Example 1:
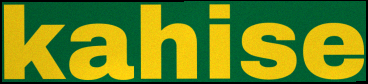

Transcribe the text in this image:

kahise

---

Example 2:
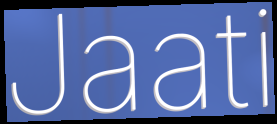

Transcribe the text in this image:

Jaati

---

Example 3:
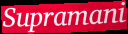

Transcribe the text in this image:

Supramani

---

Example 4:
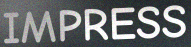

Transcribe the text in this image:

IMPRESS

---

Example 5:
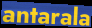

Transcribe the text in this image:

antarala